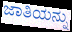
ಜಾತಿಯನ್ನು